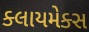
ક્લાયમેક્સ